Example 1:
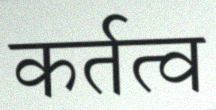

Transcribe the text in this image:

कर्तत्व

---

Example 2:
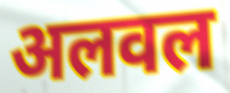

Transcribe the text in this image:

अलवल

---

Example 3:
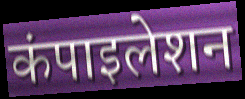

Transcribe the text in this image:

कंपाइलेशन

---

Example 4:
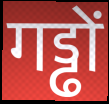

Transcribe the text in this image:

गड्ढों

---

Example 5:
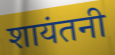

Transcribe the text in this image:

शायंतनी